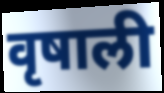
वृषाली